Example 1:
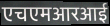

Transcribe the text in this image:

एचएमआरआई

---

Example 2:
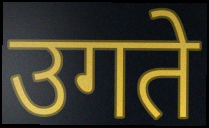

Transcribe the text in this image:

उगते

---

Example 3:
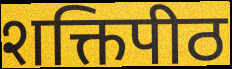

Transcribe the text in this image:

शक्तिपीठ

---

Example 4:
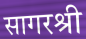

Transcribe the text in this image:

सागरश्री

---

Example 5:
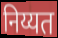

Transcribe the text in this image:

निय्यत